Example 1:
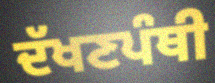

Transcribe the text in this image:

ਦੱਖਣਪੰਥੀ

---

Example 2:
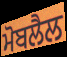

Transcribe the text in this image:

ਮੋਬਲੈਲ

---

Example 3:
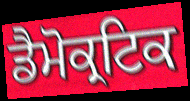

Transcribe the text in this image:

ਡੈਮੋਕ੍ਰਟਿਕ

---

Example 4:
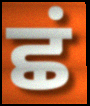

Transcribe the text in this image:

ਛਂ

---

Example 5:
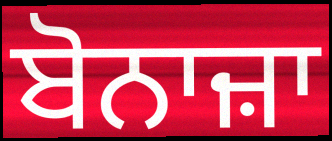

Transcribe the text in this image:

ਬੋਨਾਜ਼ਾ